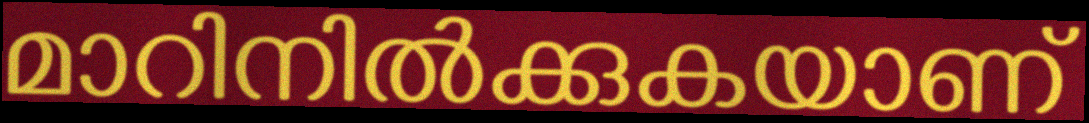
മാറിനിൽക്കുകയാണ്